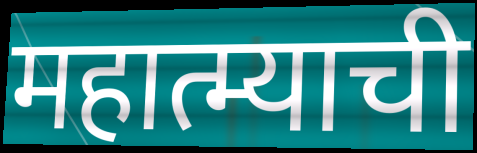
महात्म्याची